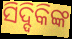
ସିଦ୍ଦିକିଙ୍କ